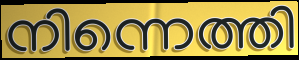
നിന്നെത്തി